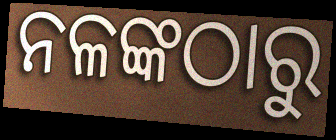
ନଳଙ୍କଠାରୁ